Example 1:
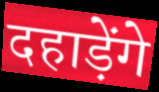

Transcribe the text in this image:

दहाड़ेंगे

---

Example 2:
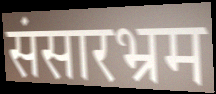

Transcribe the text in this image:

संसारभ्रम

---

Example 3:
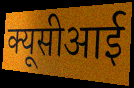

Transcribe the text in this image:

क्यूसीआई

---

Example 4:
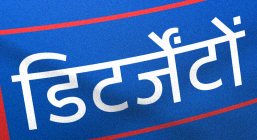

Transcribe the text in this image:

डिटर्जेंटों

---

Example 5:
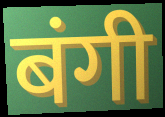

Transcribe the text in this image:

बंगी